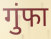
गुंफा